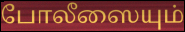
போலீஸையும்